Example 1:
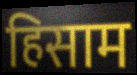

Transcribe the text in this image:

हिसाम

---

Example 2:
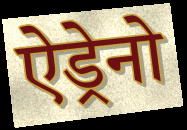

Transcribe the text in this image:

ऐड्रेनो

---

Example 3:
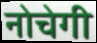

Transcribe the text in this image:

नोचेगी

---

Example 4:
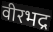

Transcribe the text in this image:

वीरभद्र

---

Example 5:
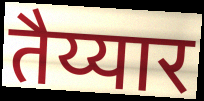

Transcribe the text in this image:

तैय्यार